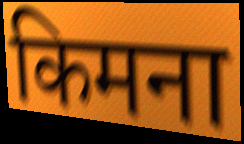
किमना